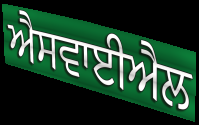
ਐਸਵਾਈਐਲ